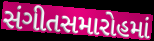
સંગીતસમારોહમાં